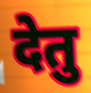
देतु